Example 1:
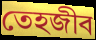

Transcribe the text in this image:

তেহজীব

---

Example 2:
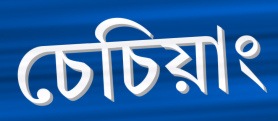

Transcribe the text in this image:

চেচিয়াং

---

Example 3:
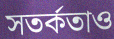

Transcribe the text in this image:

সতর্কতাও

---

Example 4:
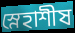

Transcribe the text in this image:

স্নেহাশীষ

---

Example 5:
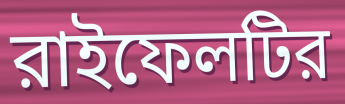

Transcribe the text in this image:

রাইফেলটির